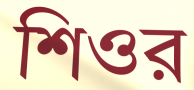
শিওর